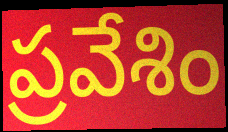
ప్రవేశిం